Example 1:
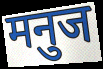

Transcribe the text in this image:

मनुज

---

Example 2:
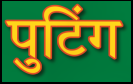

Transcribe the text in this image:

पुटिंग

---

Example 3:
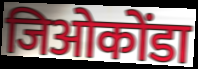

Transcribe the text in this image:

जिओकोंडा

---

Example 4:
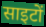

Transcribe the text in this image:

साइटों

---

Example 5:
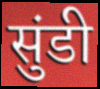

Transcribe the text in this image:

सुंडी